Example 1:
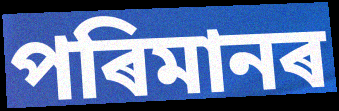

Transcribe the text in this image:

পৰিমানৰ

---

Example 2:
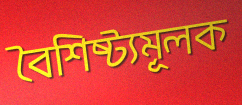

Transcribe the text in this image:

বৈশিষ্ট্যমূলক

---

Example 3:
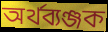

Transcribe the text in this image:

অৰ্থব্যঞ্জক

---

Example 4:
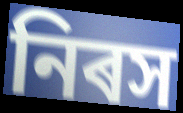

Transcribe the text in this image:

নিৰস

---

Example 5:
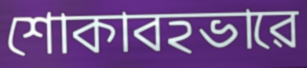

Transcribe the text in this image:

শোকাবহভাৱে